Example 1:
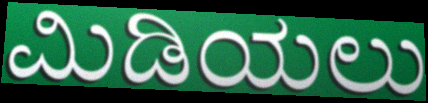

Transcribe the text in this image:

ಮಿಡಿಯಲು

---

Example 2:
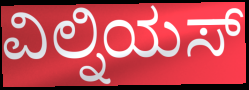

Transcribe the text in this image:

ವಿಲ್ನಿಯಸ್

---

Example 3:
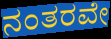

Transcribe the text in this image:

ನಂತರವೇ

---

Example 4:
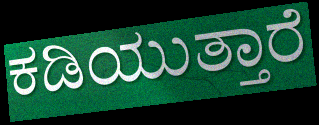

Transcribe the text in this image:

ಕಡಿಯುತ್ತಾರೆ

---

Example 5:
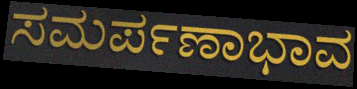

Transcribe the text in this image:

ಸಮರ್ಪಣಾಭಾವ